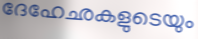
ദേഹേഛകളുടെയും